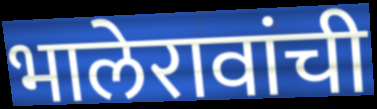
भालेरावांची